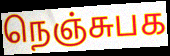
நெஞ்சுபக